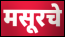
मसूरचे